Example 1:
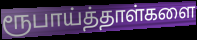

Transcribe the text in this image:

ரூபாய்த்தாள்களை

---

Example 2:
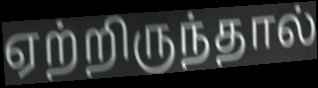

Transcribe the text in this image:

ஏற்றிருந்தால்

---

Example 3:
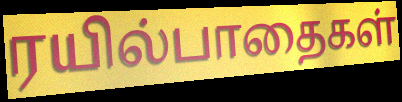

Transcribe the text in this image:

ரயில்பாதைகள்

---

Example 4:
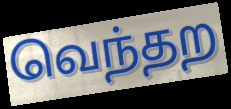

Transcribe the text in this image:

வெந்தற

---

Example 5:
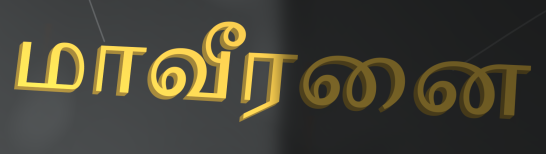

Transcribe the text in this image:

மாவீரனை